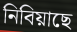
নিবিয়াছে